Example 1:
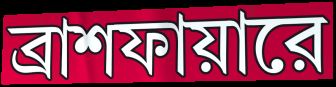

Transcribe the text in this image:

ব্রাশফায়ারে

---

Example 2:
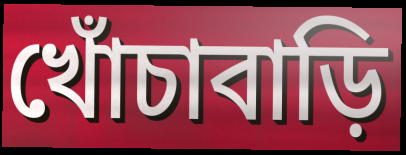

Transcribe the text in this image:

খোঁচাবাড়ি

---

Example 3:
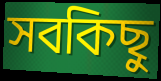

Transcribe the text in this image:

সবকিছু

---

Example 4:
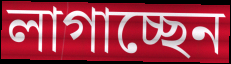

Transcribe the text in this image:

লাগাচ্ছেন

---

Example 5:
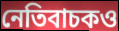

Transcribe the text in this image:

নেতিবাচকও